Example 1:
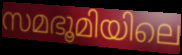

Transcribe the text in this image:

സമഭൂമിയിലെ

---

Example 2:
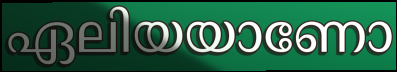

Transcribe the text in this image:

ഏലിയയാണോ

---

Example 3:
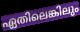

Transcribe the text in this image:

ഏതിലെങ്കിലും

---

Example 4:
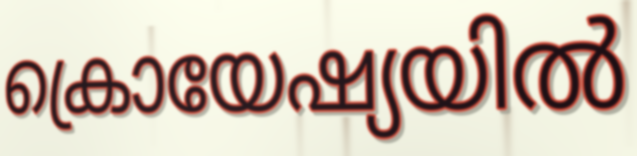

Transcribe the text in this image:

ക്രൊയേഷ്യയിൽ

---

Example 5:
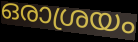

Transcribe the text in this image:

ഒരാശ്രയം